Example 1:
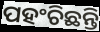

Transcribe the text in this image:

ପହଂଚିଛନ୍ତି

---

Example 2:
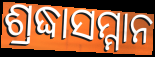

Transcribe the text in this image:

ଶ୍ରଦ୍ଧାସମ୍ମାନ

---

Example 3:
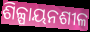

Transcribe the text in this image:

ଶିଳ୍ପାୟନଶୀଳ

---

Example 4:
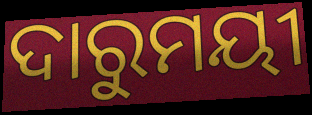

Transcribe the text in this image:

ଦାରୁମୟୀ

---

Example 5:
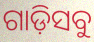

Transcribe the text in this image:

ଗାଡ଼ିସବୁ